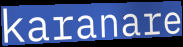
karanare